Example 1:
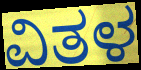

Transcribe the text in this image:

ವಿತಳ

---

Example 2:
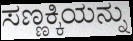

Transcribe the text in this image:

ಸಣ್ಣಕ್ಕಿಯನ್ನು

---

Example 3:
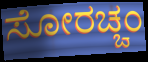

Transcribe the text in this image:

ಸೋರಚ್ಚಂ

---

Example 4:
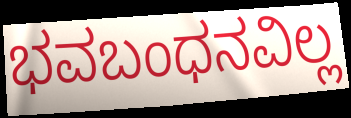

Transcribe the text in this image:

ಭವಬಂಧನವಿಲ್ಲ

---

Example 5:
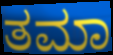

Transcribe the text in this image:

ತಮಾ